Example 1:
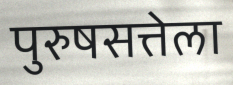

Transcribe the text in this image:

पुरुषसत्तेला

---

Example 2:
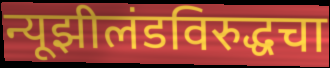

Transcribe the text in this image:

न्यूझीलंडविरुद्धचा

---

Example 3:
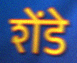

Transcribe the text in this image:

शेंडे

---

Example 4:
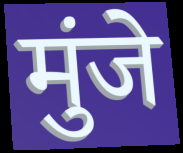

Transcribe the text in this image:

मुंजे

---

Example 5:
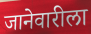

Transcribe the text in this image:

जानेवारीला